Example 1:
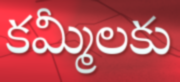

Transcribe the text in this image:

కమ్మీలకు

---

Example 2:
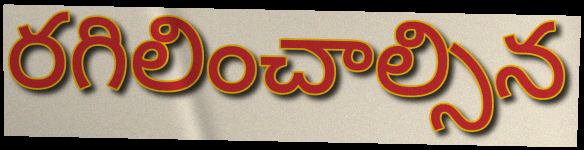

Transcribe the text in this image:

రగిలించాల్సిన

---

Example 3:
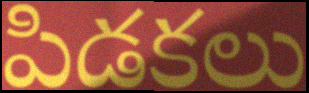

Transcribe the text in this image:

పిడకలు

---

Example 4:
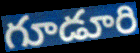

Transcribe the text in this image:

గూడూరి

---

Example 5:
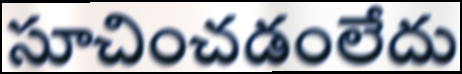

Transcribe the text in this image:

సూచించడంలేదు